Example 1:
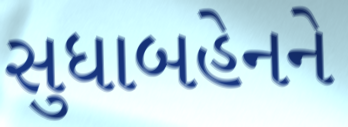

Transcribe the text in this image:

સુધાબહેનને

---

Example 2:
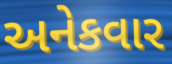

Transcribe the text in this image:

અનેકવાર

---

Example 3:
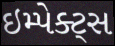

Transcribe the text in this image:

ઇમ્પેક્ટ્સ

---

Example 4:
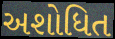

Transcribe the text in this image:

અશોધિત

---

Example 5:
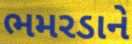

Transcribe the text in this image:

ભમરડાને